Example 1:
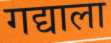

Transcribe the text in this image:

गद्याला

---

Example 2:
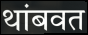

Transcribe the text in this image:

थांबवत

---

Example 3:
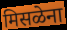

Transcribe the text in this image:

मिसळेना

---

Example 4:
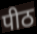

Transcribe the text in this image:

पीठ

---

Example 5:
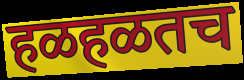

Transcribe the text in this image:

हळहळतच